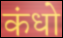
कंधो